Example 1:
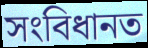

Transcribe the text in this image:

সংবিধানত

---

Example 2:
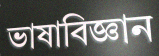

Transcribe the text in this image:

ভাষাবিজ্ঞান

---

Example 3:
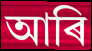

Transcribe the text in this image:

আৰি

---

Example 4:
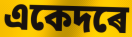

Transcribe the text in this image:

একেদৰে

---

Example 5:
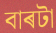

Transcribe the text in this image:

বাৰটা